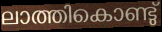
ലാത്തികൊണ്ടു്